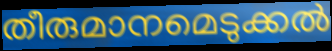
തീരുമാനമെടുക്കൽ